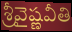
శ్రీవైష్ణవీతి